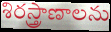
శిరస్త్రాణాలను